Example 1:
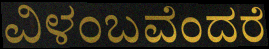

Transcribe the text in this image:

ವಿಳಂಬವೆಂದರೆ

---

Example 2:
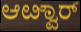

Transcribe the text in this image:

ಆೞ್ವಾರ್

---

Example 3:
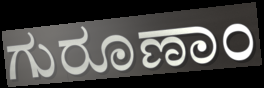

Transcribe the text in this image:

ಗುರೂಣಾಂ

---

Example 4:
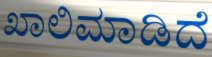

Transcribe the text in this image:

ಖಾಲಿಮಾಡಿದೆ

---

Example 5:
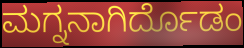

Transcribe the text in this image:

ಮಗ್ನನಾಗಿರ್ದೊಡಂ